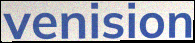
venision